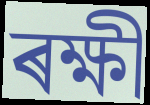
ৰক্ষী